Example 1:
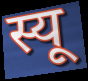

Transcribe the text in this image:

स्यू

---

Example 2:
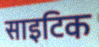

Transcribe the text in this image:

साइटिक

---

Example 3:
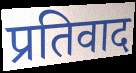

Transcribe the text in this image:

प्रतिवाद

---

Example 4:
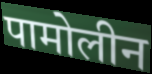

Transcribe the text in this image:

पामोलीन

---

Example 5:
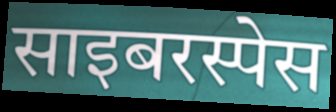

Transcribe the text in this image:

साइबरस्पेस